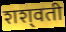
शश्वती